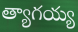
త్యాగయ్య